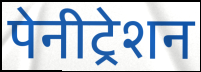
पेनीट्रेशन